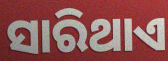
ସାରିଥାଏ